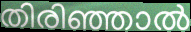
തിരിഞ്ഞാൽ